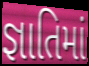
જ્ઞાતિમાં